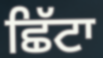
ਛਿੱਟਾ